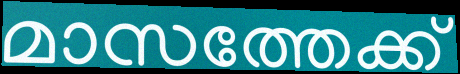
മാസത്തേക്ക്